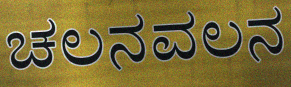
ಚಲನವಲನ